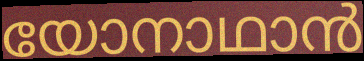
യോനാഥാൻ